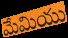
మేమియు